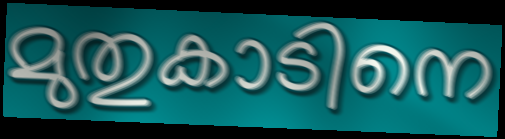
മുതുകാടിനെ